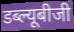
डब्ल्यूबीजी